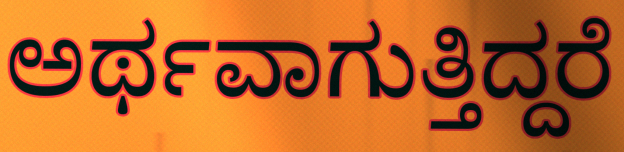
ಅರ್ಥವಾಗುತ್ತಿದ್ದರೆ